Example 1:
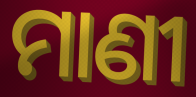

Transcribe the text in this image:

ମାଣୀ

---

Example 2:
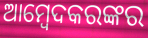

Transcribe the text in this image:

ଆମ୍ବେଦକରଙ୍କର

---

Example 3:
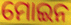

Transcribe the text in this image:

ମୋଇନ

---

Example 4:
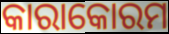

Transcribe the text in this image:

କାରାକୋରମ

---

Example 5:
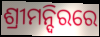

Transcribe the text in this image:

ଶ୍ରୀମନ୍ଦିରରେ